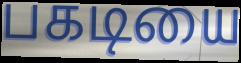
பகடியை